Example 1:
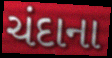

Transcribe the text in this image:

ચંદાના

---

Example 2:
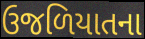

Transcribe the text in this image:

ઉજળિયાતના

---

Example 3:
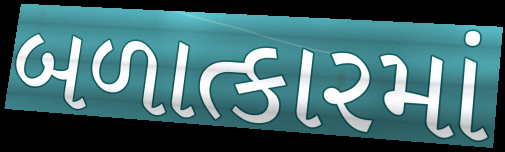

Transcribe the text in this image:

બળાત્કારમાં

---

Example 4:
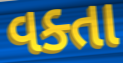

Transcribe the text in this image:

વક્તા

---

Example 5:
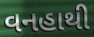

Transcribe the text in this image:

વનહાથી